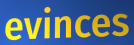
evinces